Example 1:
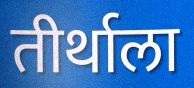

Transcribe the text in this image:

तीर्थाला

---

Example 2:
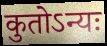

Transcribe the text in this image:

कुतोऽन्यः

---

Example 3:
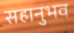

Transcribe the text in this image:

सहानुभव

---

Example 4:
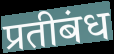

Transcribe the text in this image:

प्रतीबंध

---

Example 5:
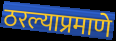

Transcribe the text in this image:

ठरल्याप्रमाणे